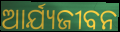
ଆର୍ଯ୍ୟଜୀବନ